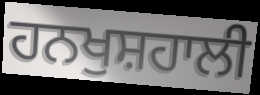
ਹਨਖੁਸ਼ਹਾਲੀ